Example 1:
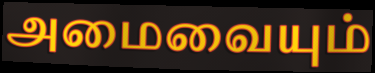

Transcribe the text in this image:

அமைவையும்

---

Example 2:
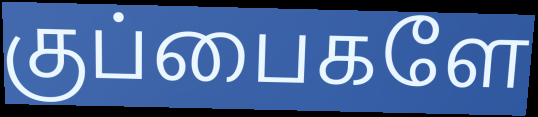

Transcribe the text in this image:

குப்பைகளே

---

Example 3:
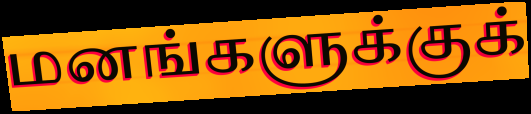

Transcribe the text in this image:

மனங்களுக்குக்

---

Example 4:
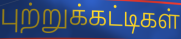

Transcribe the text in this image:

புற்றுக்கட்டிகள்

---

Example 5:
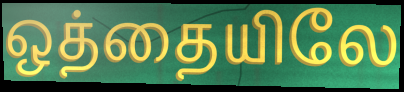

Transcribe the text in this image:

ஒத்தையிலே